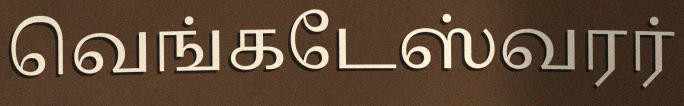
வெங்கடேஸ்வரர்